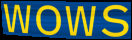
wows